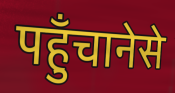
पहुँचानेसे